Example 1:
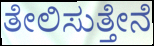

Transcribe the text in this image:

ತೇಲಿಸುತ್ತೇನೆ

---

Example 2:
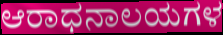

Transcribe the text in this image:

ಆರಾಧನಾಲಯಗಳ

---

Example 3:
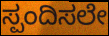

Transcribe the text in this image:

ಸ್ಪಂದಿಸಲೇ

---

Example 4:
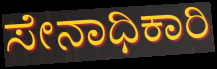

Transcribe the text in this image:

ಸೇನಾಧಿಕಾರಿ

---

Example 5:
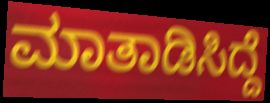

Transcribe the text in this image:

ಮಾತಾಡಿಸಿದ್ದೆ